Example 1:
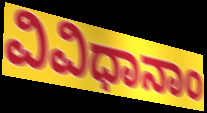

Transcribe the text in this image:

ವಿವಿಧಾನಾಂ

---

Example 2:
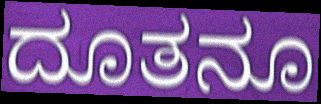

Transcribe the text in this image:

ದೂತನೂ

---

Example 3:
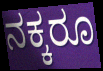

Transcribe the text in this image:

ನಕ್ಕರೂ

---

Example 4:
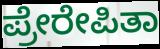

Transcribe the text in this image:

ಪ್ರೇರೇಪಿತಾ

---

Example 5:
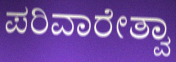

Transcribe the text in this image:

ಪರಿವಾರೇತ್ವಾ